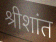
श्रीशांत